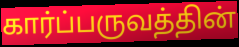
கார்ப்பருவத்தின்